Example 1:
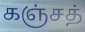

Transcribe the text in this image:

கஞ்சத்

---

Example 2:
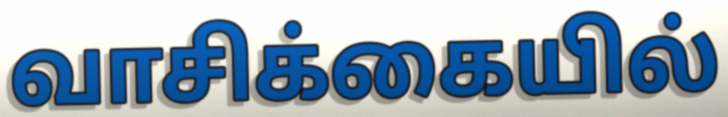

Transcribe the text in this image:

வாசிக்கையில்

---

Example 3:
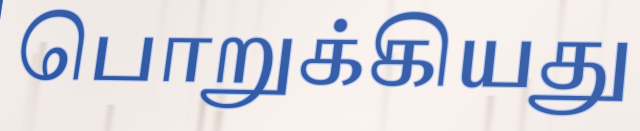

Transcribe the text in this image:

பொறுக்கியது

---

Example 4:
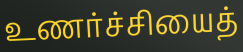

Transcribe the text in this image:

உணர்ச்சியைத்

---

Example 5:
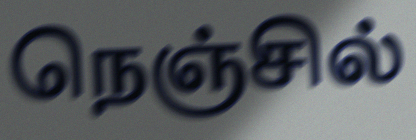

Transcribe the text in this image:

நெஞ்சில்